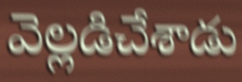
వెల్లడిచేశాడు